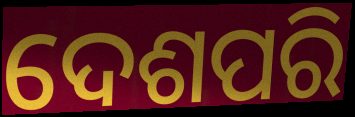
ଦେଶପରି